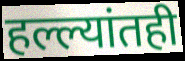
हल्ल्यांतही